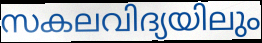
സകലവിദ്യയിലും